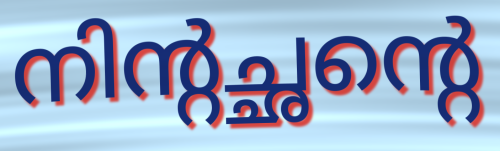
നിന്റച്ഛന്റെ